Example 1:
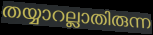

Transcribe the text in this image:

തയ്യാറല്ലാതിരുന്ന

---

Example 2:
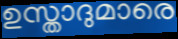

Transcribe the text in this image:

ഉസ്താദുമാരെ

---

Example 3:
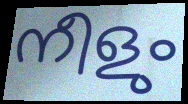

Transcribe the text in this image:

നീളും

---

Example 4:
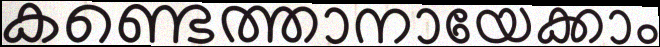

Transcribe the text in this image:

കണ്ടെത്താനായേക്കാം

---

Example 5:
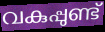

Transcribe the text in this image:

വകുപ്പുണ്ട്